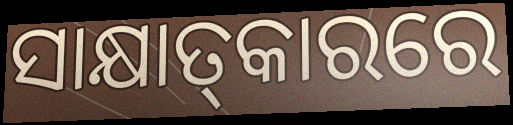
ସାକ୍ଷାତ୍‌କାରରେ